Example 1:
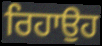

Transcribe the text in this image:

ਰਿਹਾਉਹ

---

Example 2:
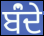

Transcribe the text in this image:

ਬਂੰਦੇ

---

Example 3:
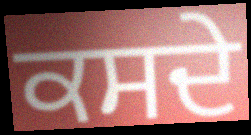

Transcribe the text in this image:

ਕਸਦੇ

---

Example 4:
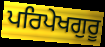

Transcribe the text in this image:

ਪਰਿਪੇਖਗੁਰੂ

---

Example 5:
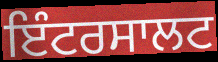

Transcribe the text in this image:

ਇੰਟਰਸਾਲਟ